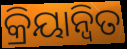
କ୍ରିୟାନ୍ୱିତ